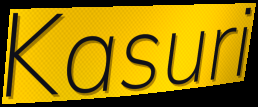
Kasuri